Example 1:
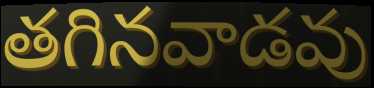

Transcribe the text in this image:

తగినవాడవు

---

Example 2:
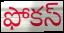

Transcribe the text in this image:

ఫోకస్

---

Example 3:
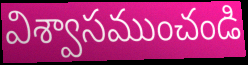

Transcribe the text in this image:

విశ్వాసముంచండి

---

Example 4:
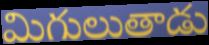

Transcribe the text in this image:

మిగులుతాడు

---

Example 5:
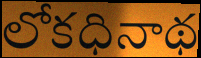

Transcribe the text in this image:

లోకధినాథ